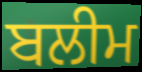
ਬਲੀਮ